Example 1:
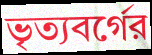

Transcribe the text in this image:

ভৃত্যবর্গের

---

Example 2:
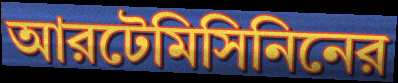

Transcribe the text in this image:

আরটেমিসিনিনের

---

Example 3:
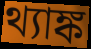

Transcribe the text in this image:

থ্যাঙ্ক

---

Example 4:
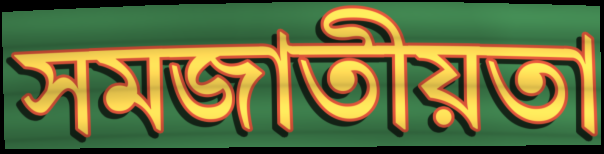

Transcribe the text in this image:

সমজাতীয়তা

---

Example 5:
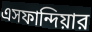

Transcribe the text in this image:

এসফান্দিয়ার